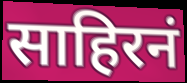
साहिरनं